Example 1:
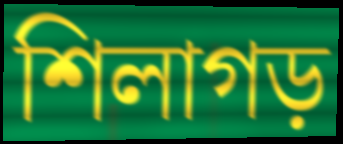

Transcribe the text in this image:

শিলাগড়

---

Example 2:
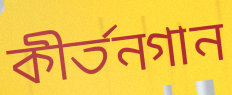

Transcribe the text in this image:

কীর্তনগান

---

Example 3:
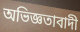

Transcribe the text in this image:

অভিজ্ঞতাবাদী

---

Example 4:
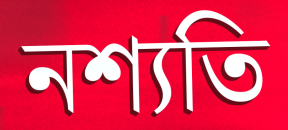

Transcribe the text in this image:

নশ্যতি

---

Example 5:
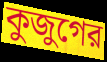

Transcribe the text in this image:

কুজুগের